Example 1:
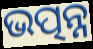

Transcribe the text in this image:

ଭତ୍ପନ୍ନ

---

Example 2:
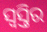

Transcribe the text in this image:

ସ୍ୱସ୍ତିର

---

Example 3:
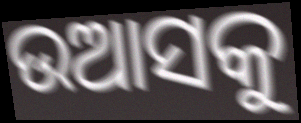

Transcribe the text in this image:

ଉଆସକୁ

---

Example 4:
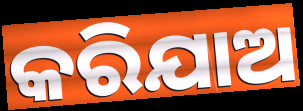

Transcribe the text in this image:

କରିଯାଅ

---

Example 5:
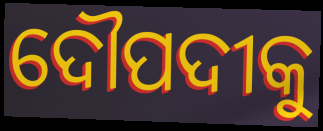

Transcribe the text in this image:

ଦୌପଦୀକୁ